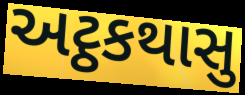
અટ્ઠકથાસુ